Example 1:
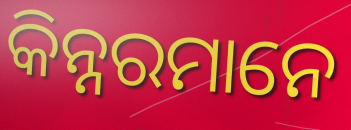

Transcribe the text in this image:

କିନ୍ନରମାନେ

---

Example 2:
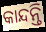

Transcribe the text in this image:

କାନ୍ଦନ୍ତି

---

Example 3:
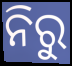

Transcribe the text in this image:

ନିରୁ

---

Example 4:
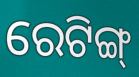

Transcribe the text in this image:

ରେଟିଙ୍ଗ୍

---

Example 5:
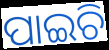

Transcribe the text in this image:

ପାଇଚି